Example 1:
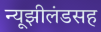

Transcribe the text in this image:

न्यूझीलंडसह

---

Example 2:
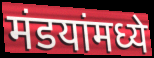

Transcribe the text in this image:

मंडयांमध्ये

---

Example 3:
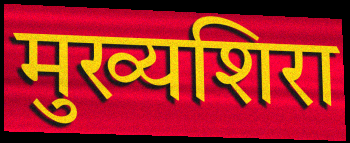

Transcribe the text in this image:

मुख्यशिरा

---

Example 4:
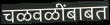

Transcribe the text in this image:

चळवळींबाबत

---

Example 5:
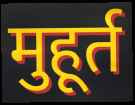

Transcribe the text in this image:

मुहूर्त